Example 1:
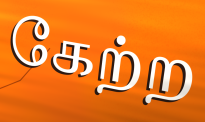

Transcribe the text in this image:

கேற்ற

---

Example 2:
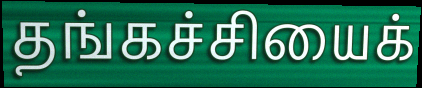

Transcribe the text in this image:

தங்கச்சியைக்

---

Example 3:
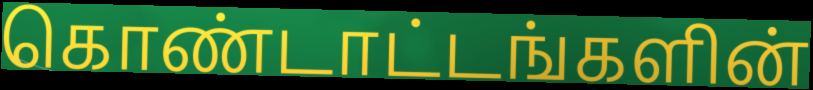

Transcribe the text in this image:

கொண்டாட்டங்களின்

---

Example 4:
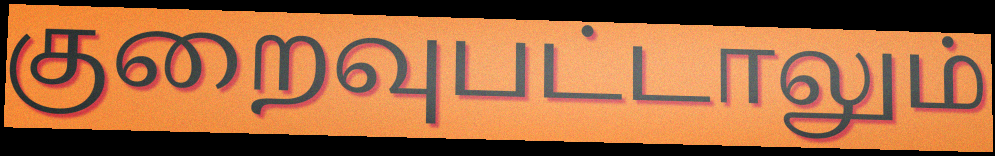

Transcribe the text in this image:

குறைவுபட்டாலும்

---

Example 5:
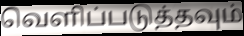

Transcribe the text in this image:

வெளிப்படுத்தவும்